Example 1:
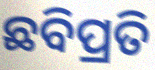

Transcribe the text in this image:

ଛବିପ୍ରତି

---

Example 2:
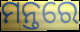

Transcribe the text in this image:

ମନ୍ତରେ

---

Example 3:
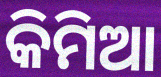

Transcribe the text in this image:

କିମିଆ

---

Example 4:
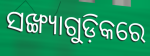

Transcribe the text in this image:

ସଙ୍ଖ୍ୟାଗୁଡ଼ିକରେ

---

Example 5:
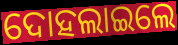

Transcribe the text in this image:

ଦୋହଲାଇଲେ